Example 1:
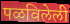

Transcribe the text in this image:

पळविलेली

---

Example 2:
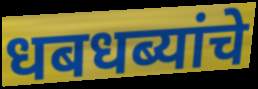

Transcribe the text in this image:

धबधब्यांचे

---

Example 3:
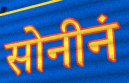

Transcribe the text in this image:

सोनीनं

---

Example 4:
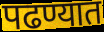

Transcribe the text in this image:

पढण्यात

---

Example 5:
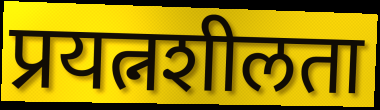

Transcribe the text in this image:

प्रयत्नशीलता